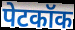
पेटकॉक